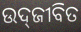
ଉଦ୍‍ଜୀବିତ